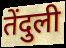
तेंदुली